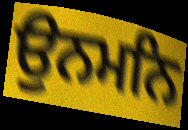
ਉਨਮਨਿ